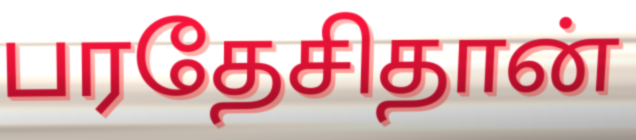
பரதேசிதான்